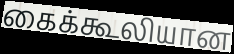
கைக்கூலியான